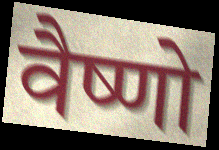
वैष्‍णो